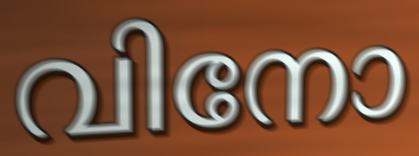
വിനോ